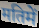
मतिमें